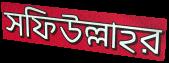
সফিউল্লাহর